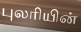
புலரியின்